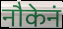
नौकेनं